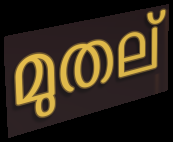
മുതല്